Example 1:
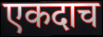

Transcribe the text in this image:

एकदाच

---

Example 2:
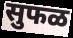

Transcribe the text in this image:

सुफळ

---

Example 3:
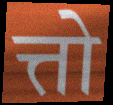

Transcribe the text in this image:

त्तो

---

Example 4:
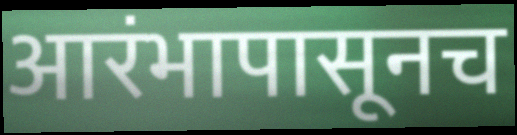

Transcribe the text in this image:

आरंभापासूनच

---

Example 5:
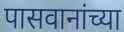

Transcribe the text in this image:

पासवानांच्या